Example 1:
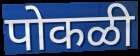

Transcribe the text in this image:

पोकळी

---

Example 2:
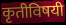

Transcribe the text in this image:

कृतीविषयी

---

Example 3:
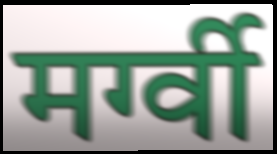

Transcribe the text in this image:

मर्ग्वी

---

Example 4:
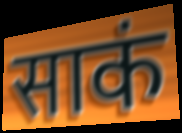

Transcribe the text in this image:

साकं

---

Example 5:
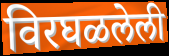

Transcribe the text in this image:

विरघळलेली